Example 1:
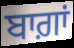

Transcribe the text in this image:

ਬਾਗ਼ਾਂ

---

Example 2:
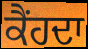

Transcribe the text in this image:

ਕੈਂਹਦਾ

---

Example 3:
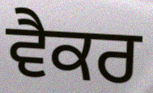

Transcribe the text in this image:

ਵੈਕਰ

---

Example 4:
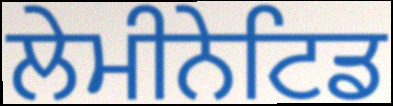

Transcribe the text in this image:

ਲੇਮੀਨੇਟਿਡ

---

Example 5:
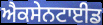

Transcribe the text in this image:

ਐਕਸੇਨਟਾਈਡ